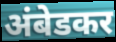
अंबेडकर